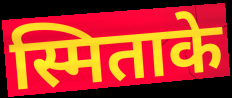
स्मिताके